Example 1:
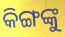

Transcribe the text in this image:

କିଙ୍ଗଙ୍କୁ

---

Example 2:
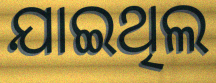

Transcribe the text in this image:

ଯାଇଥିଲ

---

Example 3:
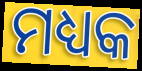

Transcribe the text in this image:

ମଧ୍ଯକ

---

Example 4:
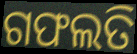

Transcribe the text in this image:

ଗଫଲତି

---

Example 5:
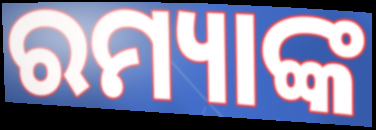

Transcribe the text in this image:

ରମ୍ୟାଙ୍କ